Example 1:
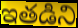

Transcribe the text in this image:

ఇతడిని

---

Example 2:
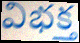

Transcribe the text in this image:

విభక్త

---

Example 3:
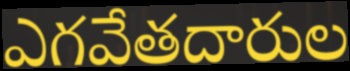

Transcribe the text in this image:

ఎగవేతదారుల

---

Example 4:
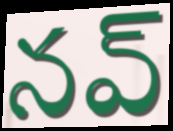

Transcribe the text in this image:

నవ్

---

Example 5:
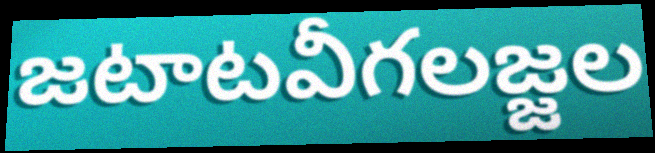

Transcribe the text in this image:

జటాటవీగలజ్జల